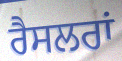
ਰੈਸਲਰਾਂ